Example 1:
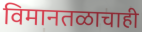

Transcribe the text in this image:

विमानतळाचाही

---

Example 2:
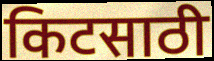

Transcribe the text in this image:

किटसाठी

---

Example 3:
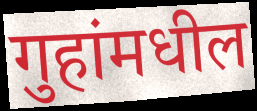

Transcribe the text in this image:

गुहांमधील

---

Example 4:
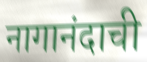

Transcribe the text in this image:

नागानंदाची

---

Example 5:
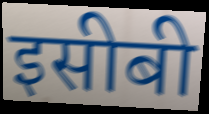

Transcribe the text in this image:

इसीबी